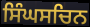
ਸਿੰਘਸਚਿਨ